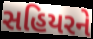
સહિયરને